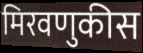
मिरवणुकीस